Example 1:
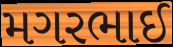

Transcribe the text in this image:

મગરભાઈ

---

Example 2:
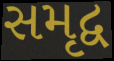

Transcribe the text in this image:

સમૃદ્વ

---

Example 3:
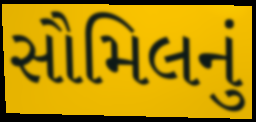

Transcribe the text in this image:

સૌમિલનું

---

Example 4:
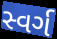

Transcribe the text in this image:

સ્વર્ગ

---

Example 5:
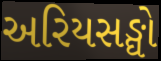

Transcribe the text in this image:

અરિયસઙ્ઘો